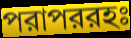
পরাপররহঃ